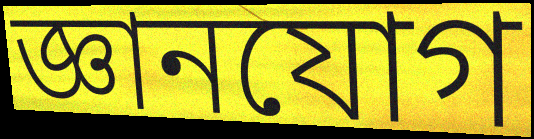
জ্ঞানযোগ